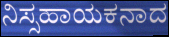
ನಿಸ್ಸಹಾಯಕನಾದ